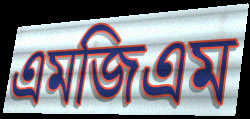
এমজিএম